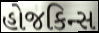
હોજકિન્સ